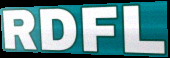
RDFL